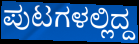
ಪುಟಗಳಲ್ಲಿದ್ದ